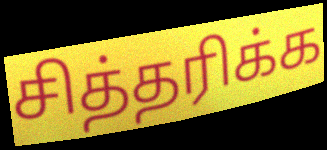
சித்தரிக்க